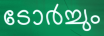
ടോർച്ചും